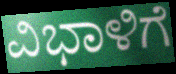
ವಿಭಾಳಿಗೆ